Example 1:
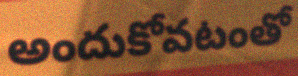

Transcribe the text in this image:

అందుకోవటంతో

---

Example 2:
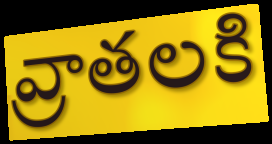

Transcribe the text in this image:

వ్రాతలకి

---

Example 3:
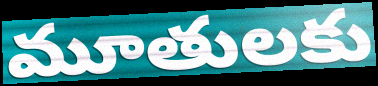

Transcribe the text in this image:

మూతులకు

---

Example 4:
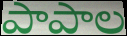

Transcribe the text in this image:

పాపాల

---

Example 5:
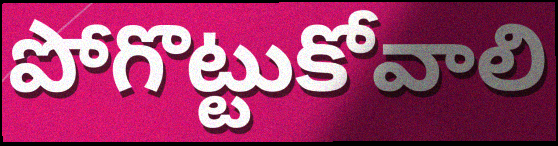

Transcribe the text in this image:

పోగొట్టుకోవాలి